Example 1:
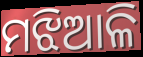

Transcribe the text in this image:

ମଝିଆଳି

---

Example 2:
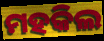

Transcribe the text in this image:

ମହକିଲ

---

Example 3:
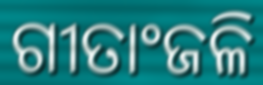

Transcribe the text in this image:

ଗୀତାଂଜଳି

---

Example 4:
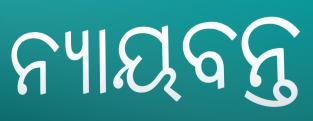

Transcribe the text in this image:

ନ୍ୟାୟବନ୍ତ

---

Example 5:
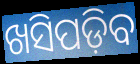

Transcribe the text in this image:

ଖସିପଡ଼ିବ